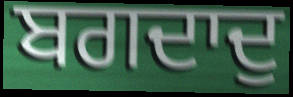
ਬਗਦਾਦੁ